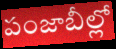
పంజాబీల్లో